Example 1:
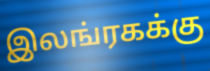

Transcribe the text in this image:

இலங்ரகக்கு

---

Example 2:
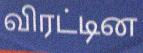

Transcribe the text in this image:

விரட்டின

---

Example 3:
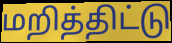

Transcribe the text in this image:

மறித்திட்டு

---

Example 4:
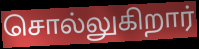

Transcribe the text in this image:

சொல்லுகிறார்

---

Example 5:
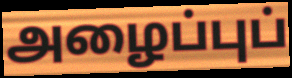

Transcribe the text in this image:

அழைப்புப்